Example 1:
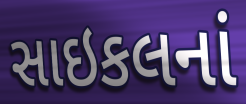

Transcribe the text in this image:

સાઇકલનાં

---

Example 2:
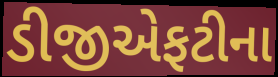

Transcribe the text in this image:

ડીજીએફટીના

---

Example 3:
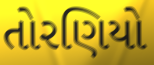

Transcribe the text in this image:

તોરણિયો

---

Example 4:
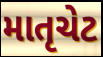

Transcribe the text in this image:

માતૃચેટ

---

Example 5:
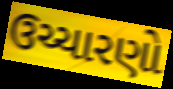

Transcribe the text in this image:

ઉચ્ચારણો